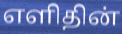
எளிதின்